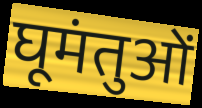
घूमंतुओं